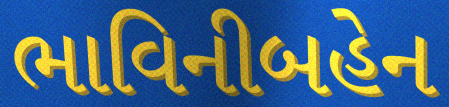
ભાવિનીબહેન